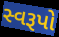
સ્વરૂપો